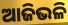
ଆଜିଭଳି